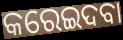
କରେଇଦବା